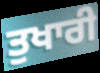
ਤੁਖਾਰੀ